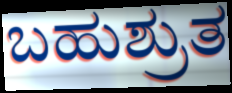
ಬಹುಶ್ರುತ